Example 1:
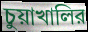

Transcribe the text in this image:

চুয়াখালির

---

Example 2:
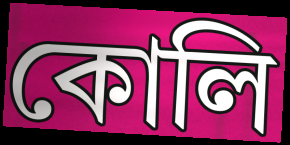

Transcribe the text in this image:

কোলি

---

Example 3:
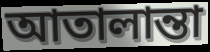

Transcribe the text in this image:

আতালান্তা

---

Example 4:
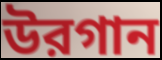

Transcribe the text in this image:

উরগান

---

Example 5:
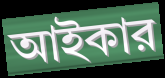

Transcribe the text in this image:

আইকার